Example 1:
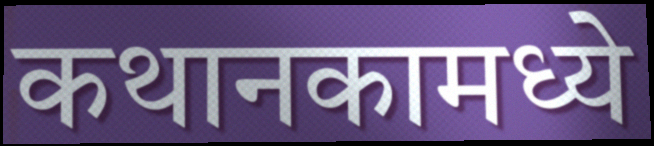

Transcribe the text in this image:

कथानकामध्ये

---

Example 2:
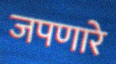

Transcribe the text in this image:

जपणारे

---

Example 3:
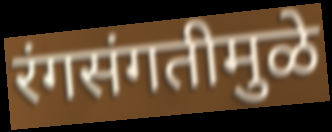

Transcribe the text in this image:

रंगसंगतीमुळे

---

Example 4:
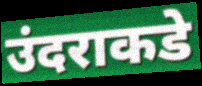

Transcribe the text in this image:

उंदराकडे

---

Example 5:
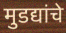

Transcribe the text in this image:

मुडद्यांचे